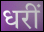
धरीं